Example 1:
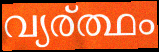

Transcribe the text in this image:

വ്യര്ത്ഥം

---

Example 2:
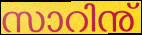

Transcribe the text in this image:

സാറിനു്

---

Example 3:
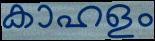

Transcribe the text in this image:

കാഹളം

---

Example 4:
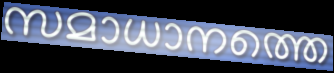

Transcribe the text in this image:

സമാധാനത്തെ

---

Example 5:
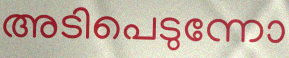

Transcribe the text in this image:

അടിപെടുന്നോ